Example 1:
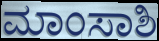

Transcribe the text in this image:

ಮಾಂಸಾಶಿ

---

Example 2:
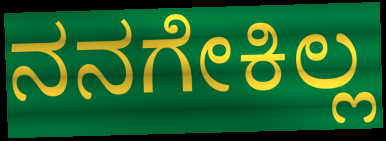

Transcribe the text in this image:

ನನಗೇಕಿಲ್ಲ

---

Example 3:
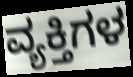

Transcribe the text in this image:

ವ್ಯಕ್ತಿಗಳ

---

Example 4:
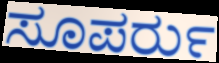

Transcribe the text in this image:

ಸೂಪರ್ರು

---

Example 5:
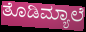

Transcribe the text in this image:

ತೊಡಿಮ್ಯಾಲೆ